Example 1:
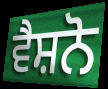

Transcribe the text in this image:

ਵੈਸ਼ਨੋ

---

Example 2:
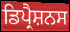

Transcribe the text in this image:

ਡਿਪ੍ਰੈਸ਼ਨਸ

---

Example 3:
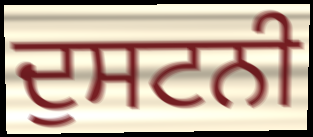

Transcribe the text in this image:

ਦੁਸਟਨੀ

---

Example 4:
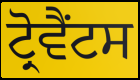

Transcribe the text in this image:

ਟ੍ਰੋਵੈਂਟਸ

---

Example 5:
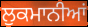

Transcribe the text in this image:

ਲੁਕਮਾਨੀਆਂ